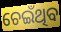
ଚେଇଁଥିବ